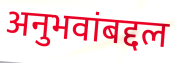
अनुभवांबद्दल